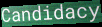
Candidacy